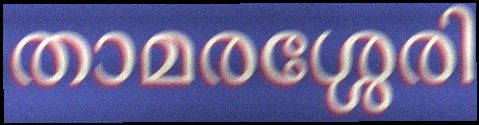
താമരശ്ശേരി